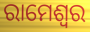
ରାମେଶ୍ୱର